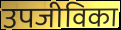
उपजीविका